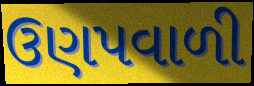
ઉણપવાળી